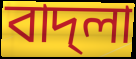
বাদ্‌লা